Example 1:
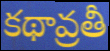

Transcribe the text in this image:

కథావ్రతీ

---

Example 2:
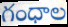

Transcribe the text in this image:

గంధాల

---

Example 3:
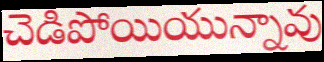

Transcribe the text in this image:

చెడిపోయియున్నావు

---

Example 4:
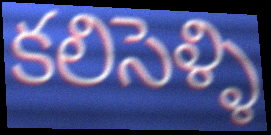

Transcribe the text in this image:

కలిసెళ్ళి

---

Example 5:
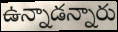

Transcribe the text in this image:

ఉన్నాడన్నారు